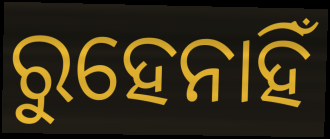
ରୁହେନାହିଁ